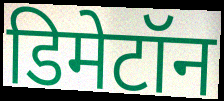
डिमेटॉन